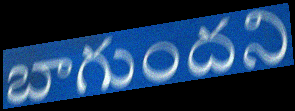
బాగుందని